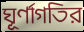
ঘূর্ণাগতির